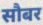
सौबर